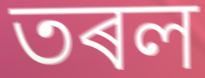
তৰল